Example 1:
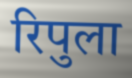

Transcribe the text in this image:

रिपुला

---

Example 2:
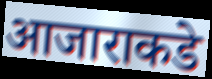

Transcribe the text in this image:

आजाराकडे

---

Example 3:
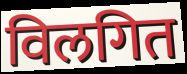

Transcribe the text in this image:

विलगित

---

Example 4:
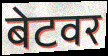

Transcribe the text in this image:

बेटवर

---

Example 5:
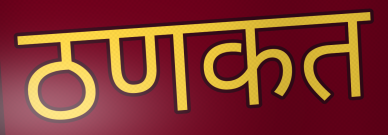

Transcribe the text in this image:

ठणकत